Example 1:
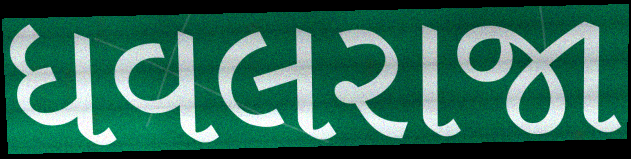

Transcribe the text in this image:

ધવલરાજા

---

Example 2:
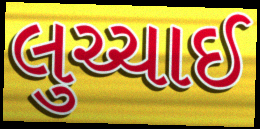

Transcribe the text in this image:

લુચ્ચાઈ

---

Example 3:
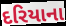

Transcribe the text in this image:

દરિયાના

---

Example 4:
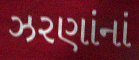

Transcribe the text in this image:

ઝરણાંનાં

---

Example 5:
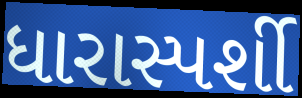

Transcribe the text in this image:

ધારાસ્પર્શી